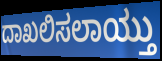
ದಾಖಲಿಸಲಾಯ್ತು